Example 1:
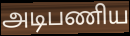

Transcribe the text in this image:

அடிபணிய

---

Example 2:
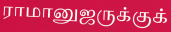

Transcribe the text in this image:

ராமானுஜருக்குக்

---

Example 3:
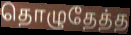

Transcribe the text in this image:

தொழுதேத்த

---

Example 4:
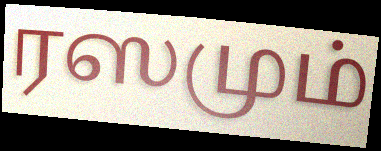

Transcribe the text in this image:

ரஸமும்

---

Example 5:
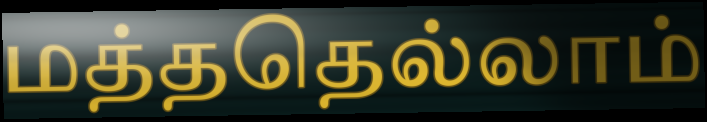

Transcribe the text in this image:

மத்ததெல்லாம்